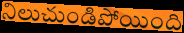
నిలుచుండిపోయింది